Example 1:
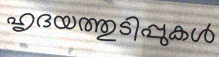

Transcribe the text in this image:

ഹൃദയത്തുടിപ്പുകൾ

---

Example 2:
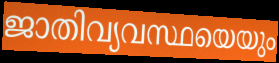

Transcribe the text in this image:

ജാതിവ്യവസ്ഥയെയും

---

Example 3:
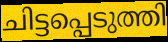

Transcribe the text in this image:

ചിട്ടപ്പെടുത്തി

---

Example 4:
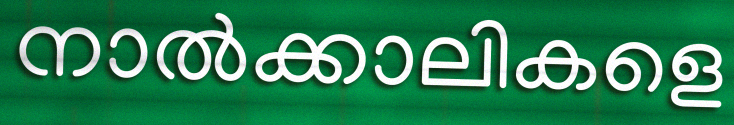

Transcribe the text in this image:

നാൽക്കാലികളെ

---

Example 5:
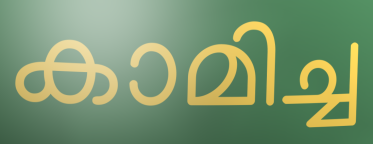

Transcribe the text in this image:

കാമിച്ച